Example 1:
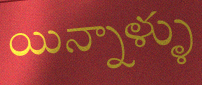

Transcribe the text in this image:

యిన్నాళ్ళు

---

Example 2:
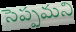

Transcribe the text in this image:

సెప్పమని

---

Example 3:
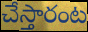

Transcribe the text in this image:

చేస్తారంట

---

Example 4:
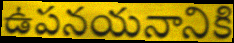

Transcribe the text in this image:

ఉపనయనానికి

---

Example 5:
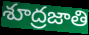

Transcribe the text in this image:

శూద్రజాతి